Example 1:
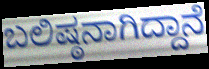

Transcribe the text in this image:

ಬಲಿಷ್ಠನಾಗಿದ್ದಾನೆ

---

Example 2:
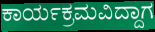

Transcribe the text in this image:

ಕಾರ್ಯಕ್ರಮವಿದ್ದಾಗ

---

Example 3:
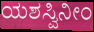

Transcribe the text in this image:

ಯಶಸ್ವಿನೀಂ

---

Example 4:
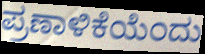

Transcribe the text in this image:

ಪ್ರಣಾಳಿಕೆಯೆಂದು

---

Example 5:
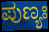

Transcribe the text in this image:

ಪುಣ್ಯಃ